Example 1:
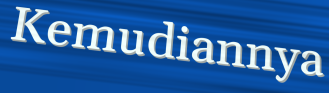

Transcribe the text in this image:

Kemudiannya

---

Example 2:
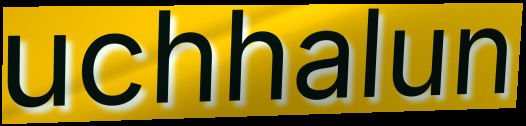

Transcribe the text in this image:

uchhalun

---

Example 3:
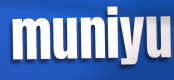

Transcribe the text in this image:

muniyu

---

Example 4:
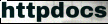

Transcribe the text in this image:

httpdocs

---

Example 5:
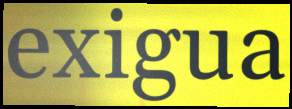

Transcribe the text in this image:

exigua